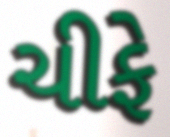
ચીફે